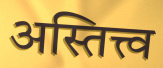
अस्तित्त्व